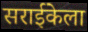
सराईकेला